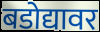
बडोद्यावर